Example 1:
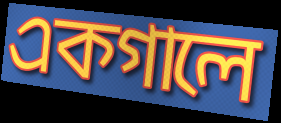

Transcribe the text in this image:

একগালে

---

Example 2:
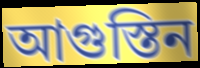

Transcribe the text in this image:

আগুস্তিন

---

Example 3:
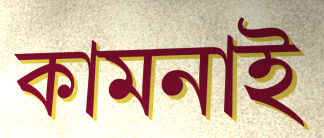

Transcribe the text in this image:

কামনাই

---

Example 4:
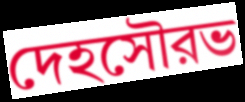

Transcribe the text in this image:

দেহসৌরভ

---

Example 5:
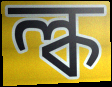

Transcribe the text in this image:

ল্ক